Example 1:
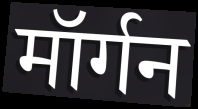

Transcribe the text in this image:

मॉर्गन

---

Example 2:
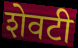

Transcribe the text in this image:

शेवटी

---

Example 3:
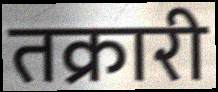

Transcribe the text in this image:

तक्रारी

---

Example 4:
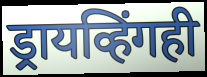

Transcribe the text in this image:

ड्रायव्हिंगही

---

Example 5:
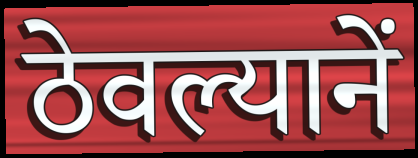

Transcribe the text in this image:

ठेवल्यानें